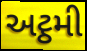
અટ્ઠમી